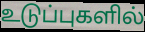
உடுப்புகளில்